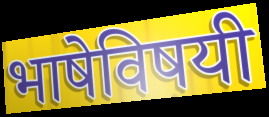
भाषेविषयी